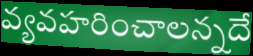
వ్యవహరించాలన్నదే